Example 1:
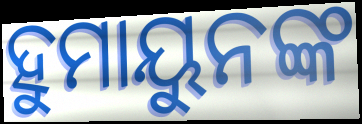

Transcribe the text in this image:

ହୁମାୟୁନଙ୍କ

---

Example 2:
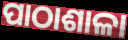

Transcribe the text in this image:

ପାଠାଶାଳା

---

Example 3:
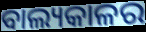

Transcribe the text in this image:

ବାଲ୍ୟକାଳର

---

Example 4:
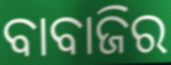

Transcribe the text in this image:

ବାବାଜିର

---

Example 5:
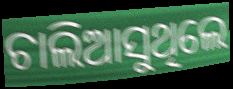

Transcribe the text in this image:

ଚାଲିଆସୁଥିଲେ